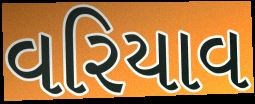
વરિયાવ